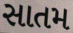
સાતમ